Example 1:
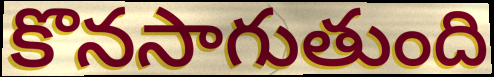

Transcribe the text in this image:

కొనసాగుతుంది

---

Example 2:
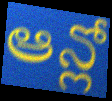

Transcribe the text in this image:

ఆన్లో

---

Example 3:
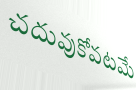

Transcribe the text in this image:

చదువుకోవటమే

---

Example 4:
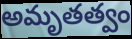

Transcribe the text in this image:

అమృతత్వం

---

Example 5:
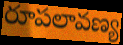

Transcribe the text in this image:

రూపలావణ్య